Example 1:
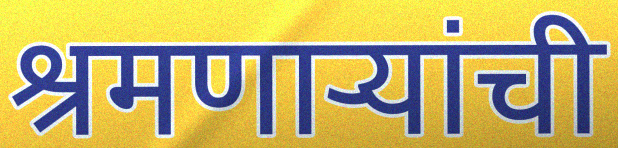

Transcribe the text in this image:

श्रमणाऱ्यांची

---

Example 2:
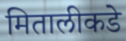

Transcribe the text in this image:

मितालीकडे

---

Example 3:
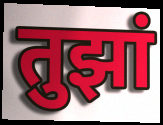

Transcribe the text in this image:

तुझां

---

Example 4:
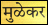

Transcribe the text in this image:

मुळेकर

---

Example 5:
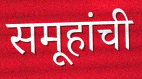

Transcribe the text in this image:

समूहांची